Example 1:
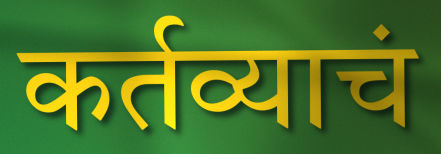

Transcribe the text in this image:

कर्तव्याचं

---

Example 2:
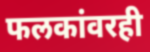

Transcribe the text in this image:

फलकांवरही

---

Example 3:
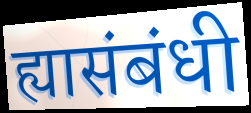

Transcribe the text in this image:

ह्यासंबंधी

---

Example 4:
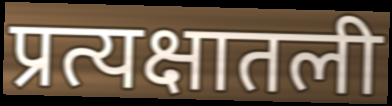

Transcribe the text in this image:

प्रत्यक्षातली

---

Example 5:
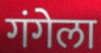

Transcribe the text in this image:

गंगेला